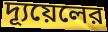
দ্যূয়েলের